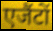
एजैंटों